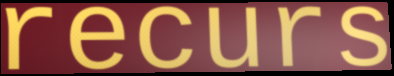
recurs